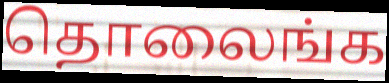
தொலைங்க